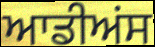
ਆਡੀਅਂਸ